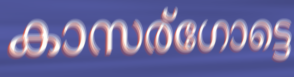
കാസര്ഗോട്ടെ